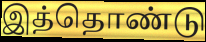
இத்தொண்டு